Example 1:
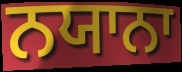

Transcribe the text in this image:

ਨਯਾਨਾ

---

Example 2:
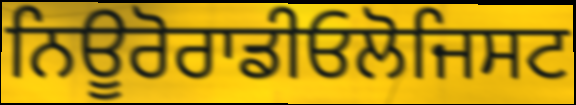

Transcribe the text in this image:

ਨਿਊਰੋਰਾਡੀਓਲੋਜਿਸਟ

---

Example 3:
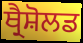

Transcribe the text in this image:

ਥ੍ਰੈਸ਼ੋਲਡ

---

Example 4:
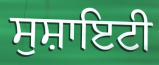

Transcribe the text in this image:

ਸੁਸ਼ਾਇਟੀ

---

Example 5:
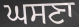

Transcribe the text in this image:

ਘਸਣਾ